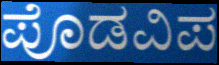
ಪೊಡವಿಪ